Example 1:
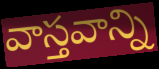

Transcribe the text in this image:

వాస్తవాన్ని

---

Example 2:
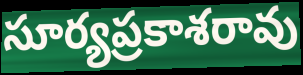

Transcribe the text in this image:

సూర్యప్రకాశరావు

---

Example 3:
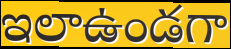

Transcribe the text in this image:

ఇలాఉండగా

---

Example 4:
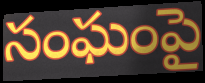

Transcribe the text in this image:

సంఘంపై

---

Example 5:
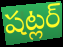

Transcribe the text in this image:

షట్లర్